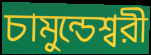
চামুন্ডেশ্বরী